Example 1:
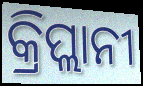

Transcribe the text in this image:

କ୍ରିପ୍ଲାନୀ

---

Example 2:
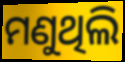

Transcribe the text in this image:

ମଣୁଥିଲି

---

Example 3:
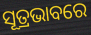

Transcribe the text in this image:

ସୂତ୍ରଭାବରେ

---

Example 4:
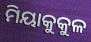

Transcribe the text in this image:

ମିୟାକୁକୁଳ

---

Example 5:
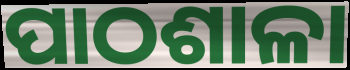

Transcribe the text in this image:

ପାଠଶାଳା